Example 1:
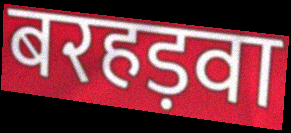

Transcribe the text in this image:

बरहड़वा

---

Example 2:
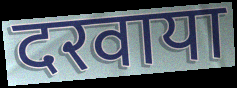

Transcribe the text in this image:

दरवाया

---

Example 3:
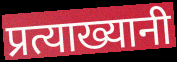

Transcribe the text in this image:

प्रत्याख्यानी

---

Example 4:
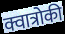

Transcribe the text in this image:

क्वात्रोकी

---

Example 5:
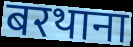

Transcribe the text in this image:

बरथाना